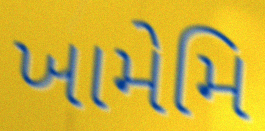
ખામેમિ